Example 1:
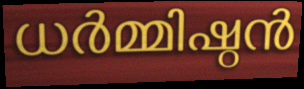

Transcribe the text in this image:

ധർമ്മിഷ്ഠൻ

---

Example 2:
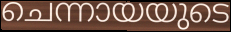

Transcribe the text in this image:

ചെന്നായയുടെ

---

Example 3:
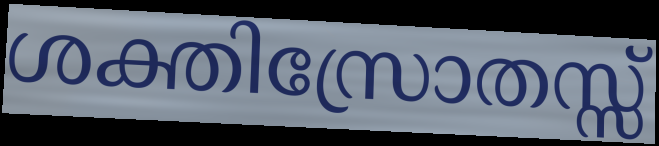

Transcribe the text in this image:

ശക്തിസ്രോതസ്സ്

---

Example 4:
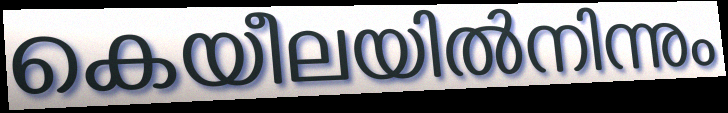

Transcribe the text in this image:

കെയീലയിൽനിന്നും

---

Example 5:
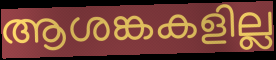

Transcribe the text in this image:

ആശങ്കകളില്ല